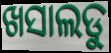
ଖସାଲଡୁ